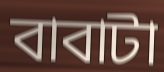
বাবাটা